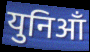
युनिआँ